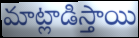
మాట్లాడిస్తాయి